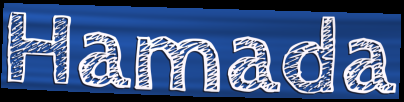
Hamada